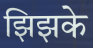
झिझके